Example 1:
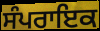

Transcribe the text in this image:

ਸੰਪਰਾਇਕ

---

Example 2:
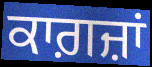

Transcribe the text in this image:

ਕਾਗ਼ਜ਼ਾਂ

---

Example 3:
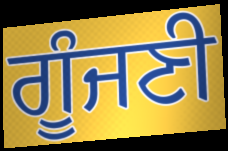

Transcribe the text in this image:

ਗੂੰਜਣੀ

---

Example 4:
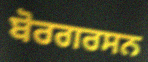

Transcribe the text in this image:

ਬੋਰਗਰਸਨ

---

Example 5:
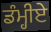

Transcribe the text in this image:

ਡੰਮ੍ਹੀਏ